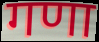
गणा